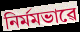
নিৰ্মমভাৱে